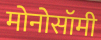
मोनोसॉमी